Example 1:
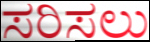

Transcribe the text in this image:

ಸರಿಸಲು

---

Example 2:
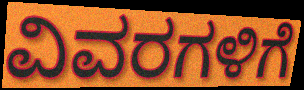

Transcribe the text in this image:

ವಿವರಗಳಿಗೆ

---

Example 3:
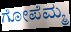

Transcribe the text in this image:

ಗೋಪೆಮ್ಮ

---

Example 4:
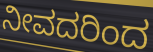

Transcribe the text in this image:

ನೀವದರಿಂದ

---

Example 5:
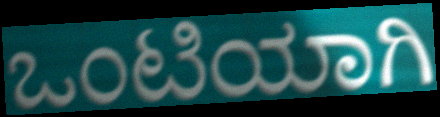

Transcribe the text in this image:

ಒಂಟಿಯಾಗಿ